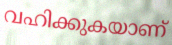
വഹിക്കുകയാണ്